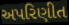
અપરિણીત